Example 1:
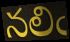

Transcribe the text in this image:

నలిఁ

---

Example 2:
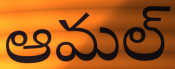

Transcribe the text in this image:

ఆమల్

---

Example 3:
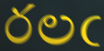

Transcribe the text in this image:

రలఁ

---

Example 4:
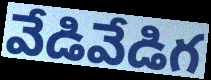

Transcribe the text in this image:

వేడివేడిగ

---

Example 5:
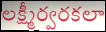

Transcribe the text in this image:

లక్ష్మీర్వరకలా